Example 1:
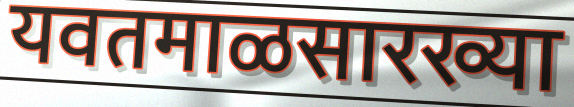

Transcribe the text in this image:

यवतमाळसारख्या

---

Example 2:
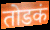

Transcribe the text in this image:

तोडकं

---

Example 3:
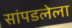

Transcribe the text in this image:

सांपडलेला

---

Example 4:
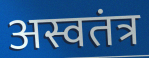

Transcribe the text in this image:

अस्वतंत्र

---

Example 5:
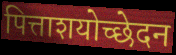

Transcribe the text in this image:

पित्ताशयोच्छेदन